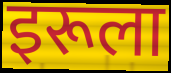
इरूला